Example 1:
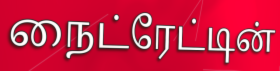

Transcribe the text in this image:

நைட்ரேட்டின்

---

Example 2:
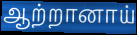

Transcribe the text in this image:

ஆற்றானாய்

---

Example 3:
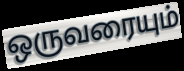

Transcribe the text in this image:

ஒருவரையும்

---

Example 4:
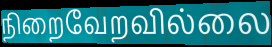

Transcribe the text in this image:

நிறைவேறவில்லை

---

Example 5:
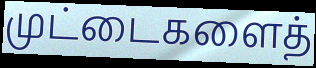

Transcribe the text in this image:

முட்டைகளைத்